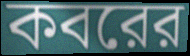
কবরের